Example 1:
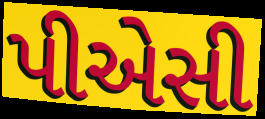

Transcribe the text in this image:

પીએસી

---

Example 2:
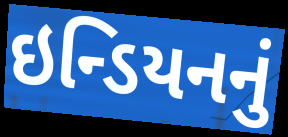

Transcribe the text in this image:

ઇન્ડિયનનું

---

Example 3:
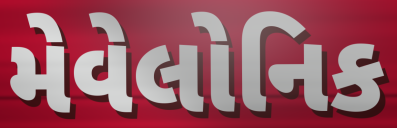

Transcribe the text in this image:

મેવેલોનિક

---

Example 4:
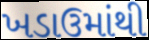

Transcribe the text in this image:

ખડાઉમાંથી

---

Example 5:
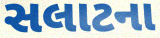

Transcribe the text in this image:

સલાટના